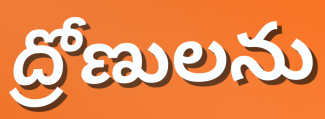
ద్రోణులను